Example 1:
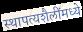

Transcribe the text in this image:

स्थापत्यशैलींमध्ये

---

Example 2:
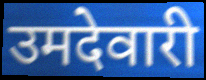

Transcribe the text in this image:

उमदेवारी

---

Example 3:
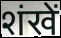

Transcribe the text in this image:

शंखें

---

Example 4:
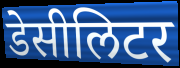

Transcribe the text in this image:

डेसीलिटर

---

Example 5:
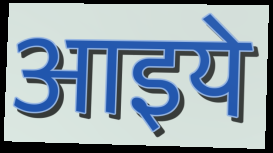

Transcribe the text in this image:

आइये